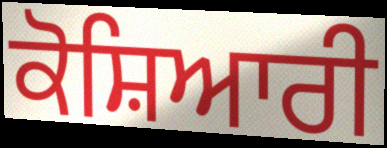
ਕੋਸ਼ਿਆਰੀ